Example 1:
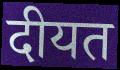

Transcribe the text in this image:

दीयत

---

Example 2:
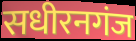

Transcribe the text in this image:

सधीरनगंज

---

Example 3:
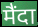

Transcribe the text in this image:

मैंदा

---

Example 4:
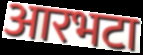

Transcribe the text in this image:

आरभटा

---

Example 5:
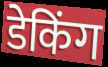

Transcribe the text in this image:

डेकिंग